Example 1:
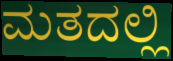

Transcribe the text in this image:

ಮತದಲ್ಲಿ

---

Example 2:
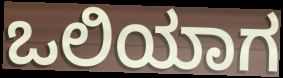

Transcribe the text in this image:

ಒಲಿಯಾಗ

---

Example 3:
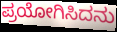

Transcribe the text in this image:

ಪ್ರಯೋಗಿಸಿದನು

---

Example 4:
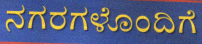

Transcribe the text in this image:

ನಗರಗಳೊಂದಿಗೆ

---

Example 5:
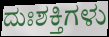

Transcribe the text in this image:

ದುಃಶಕ್ತಿಗಳು